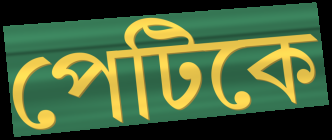
পেটিকে